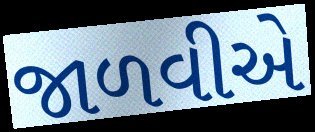
જાળવીએ